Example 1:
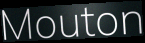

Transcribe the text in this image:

Mouton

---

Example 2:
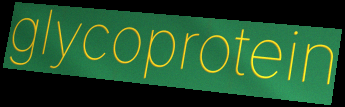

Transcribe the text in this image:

glycoprotein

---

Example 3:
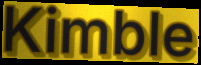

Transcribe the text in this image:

Kimble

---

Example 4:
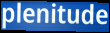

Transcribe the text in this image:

plenitude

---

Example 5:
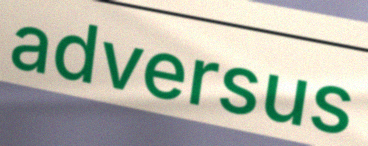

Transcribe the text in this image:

adversus